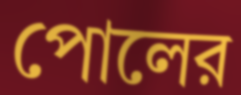
পোলের